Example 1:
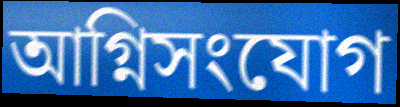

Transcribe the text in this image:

আগ্নিসংযোগ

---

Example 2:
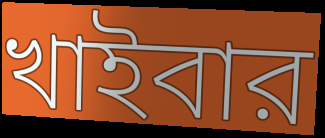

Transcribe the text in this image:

খাইবার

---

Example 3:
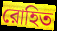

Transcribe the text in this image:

রোহিত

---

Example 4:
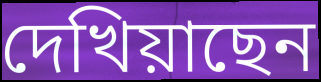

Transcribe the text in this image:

দেখিয়াছেন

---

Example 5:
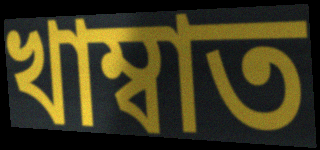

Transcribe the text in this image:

খাম্বাত